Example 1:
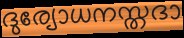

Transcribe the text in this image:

ദുര്യോധനസ്തദാ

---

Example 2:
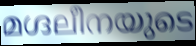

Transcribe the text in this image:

മഗ്ദലീനയുടെ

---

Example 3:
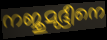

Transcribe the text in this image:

നജുമുദ്ദീനെ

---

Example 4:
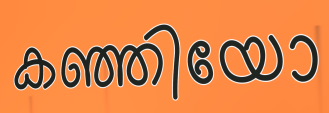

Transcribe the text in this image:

കഞ്ഞിയോ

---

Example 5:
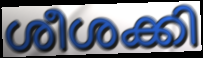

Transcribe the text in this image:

ശീശക്കി